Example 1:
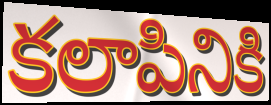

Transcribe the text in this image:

కలాపినికి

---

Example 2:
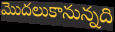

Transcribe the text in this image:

మొదలుకానున్నది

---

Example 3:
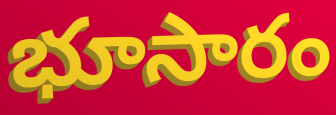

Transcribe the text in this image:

భూసారం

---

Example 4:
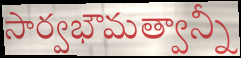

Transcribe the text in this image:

సార్వభౌమత్వాన్నీ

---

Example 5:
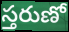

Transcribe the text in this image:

స్తరుణో